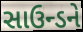
સાઉન્ડને